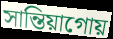
সান্তিয়াগোয়